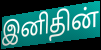
இனிதின்